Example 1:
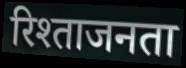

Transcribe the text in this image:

रिश्ताजनता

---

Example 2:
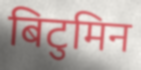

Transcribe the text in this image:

बिटुमिन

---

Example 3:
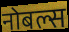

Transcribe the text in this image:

नोबल्स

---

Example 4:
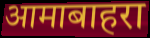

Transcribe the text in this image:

आमाबाहरा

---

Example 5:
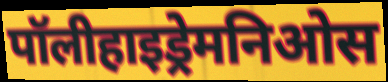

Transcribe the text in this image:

पॉलीहाइड्रेमनिओस